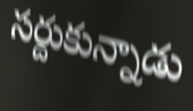
సర్దుకున్నాడు